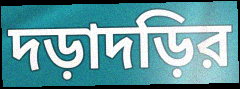
দড়াদড়ির